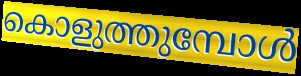
കൊളുത്തുമ്പോൾ